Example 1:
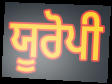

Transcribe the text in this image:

ਯੂਰੋਪੀ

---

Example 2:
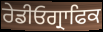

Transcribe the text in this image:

ਰੇਡੀਓਗ੍ਰਾਫਿਕ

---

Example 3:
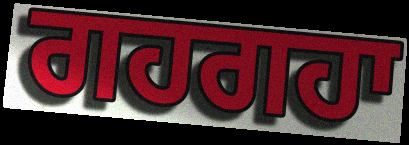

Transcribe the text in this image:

ਗਹਗਹਾ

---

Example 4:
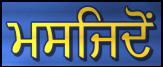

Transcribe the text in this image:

ਮਸਜਿਦੋਂ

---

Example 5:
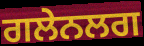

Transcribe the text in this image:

ਗਲੇਨਲਗ